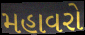
મહાવરો